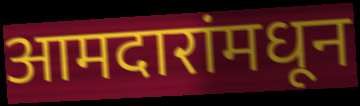
आमदारांमधून